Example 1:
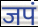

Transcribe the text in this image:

जपं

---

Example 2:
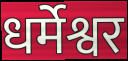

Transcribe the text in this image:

धर्मेश्वर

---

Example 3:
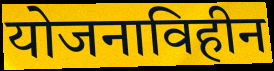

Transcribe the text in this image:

योजनाविहीन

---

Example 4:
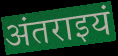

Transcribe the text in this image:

अंतराइयं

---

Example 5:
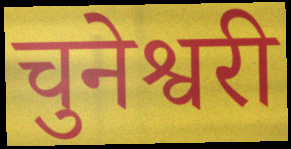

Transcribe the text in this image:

चुनेश्वरी